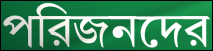
পরিজনদের